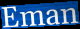
Eman